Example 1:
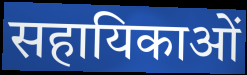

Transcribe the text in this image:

सहायिकाओं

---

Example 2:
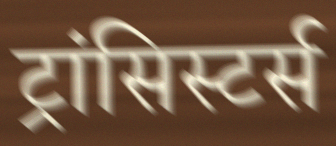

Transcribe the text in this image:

ट्रांसिस्टर्स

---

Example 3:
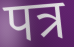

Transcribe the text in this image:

पत्र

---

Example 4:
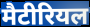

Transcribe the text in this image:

मैटीरियल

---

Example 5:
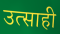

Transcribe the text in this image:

उत्साही